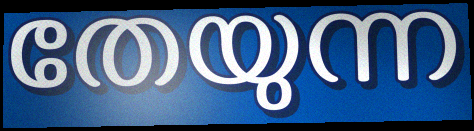
തേയുന്ന